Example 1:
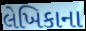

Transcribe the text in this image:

લેખિકાના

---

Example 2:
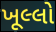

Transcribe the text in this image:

ખૂલ્લો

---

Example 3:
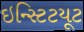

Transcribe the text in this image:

ઇન્સ્ટિટયૂટ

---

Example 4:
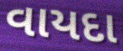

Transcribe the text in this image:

વાયદા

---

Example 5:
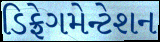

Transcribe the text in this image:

ડિફ્રેગમેન્ટેશન